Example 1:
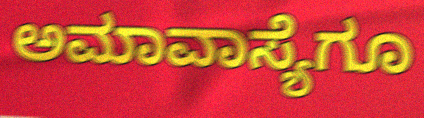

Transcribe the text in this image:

ಅಮಾವಾಸ್ಯೆಗೂ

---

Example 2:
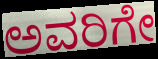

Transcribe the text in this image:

ಅವರಿಗೇ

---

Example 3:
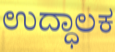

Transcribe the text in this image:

ಉದ್ಧಾಲಕ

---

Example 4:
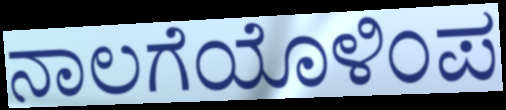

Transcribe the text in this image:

ನಾಲಗೆಯೊಳಿಂಪ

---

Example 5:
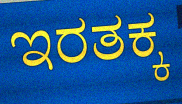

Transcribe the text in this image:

ಇರತಕ್ಕ